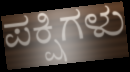
ಪಕ್ಷಿಗಳು